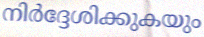
നിർദ്ദേശിക്കുകയും